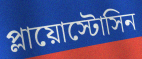
প্লায়োস্টোসিন